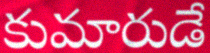
కుమారుడే